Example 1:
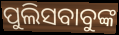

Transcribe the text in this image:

ପୁଲିସବାବୁଙ୍କ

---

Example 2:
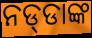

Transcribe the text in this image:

ନଡ୍‌ଡାଙ୍କ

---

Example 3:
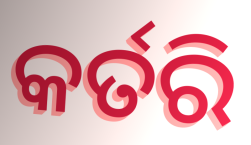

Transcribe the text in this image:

କର୍ତରି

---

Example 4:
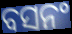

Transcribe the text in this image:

ବସନଂ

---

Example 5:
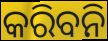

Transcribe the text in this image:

କରିବନି